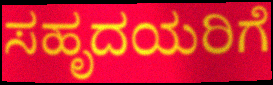
ಸಹೃದಯರಿಗೆ